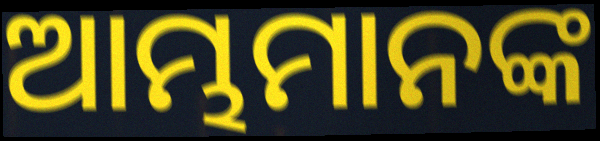
ଆମ୍ଭମାନଙ୍କ